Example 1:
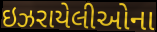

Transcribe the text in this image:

ઇઝરાયેલીઓના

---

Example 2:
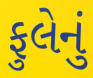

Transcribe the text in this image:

ફુલેનું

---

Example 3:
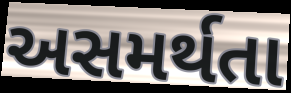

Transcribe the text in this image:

અસમર્થતા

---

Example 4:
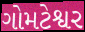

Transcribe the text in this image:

ગોમટેશ્વર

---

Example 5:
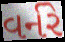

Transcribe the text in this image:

વર્નરે